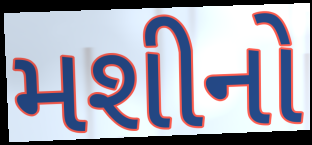
મશીનો